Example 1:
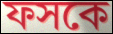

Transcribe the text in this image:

ফসকে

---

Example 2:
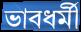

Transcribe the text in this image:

ভাবধর্মী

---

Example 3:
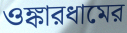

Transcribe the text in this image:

ওঙ্কারধামের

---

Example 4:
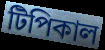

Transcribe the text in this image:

টিপিকাল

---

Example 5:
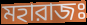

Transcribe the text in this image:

মহারাজঃ